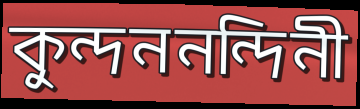
কুন্দননন্দিনী